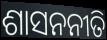
ଶାସନନୀତି